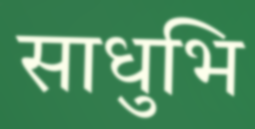
साधुभि